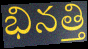
భినత్తి